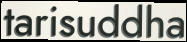
tarisuddha